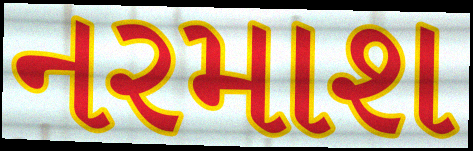
નરમાશ